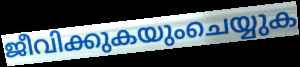
ജീവിക്കുകയുംചെയ്യുക